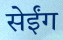
सेईंग